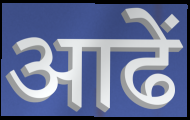
आढें